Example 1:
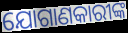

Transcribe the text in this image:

ଯୋଗାଣକାରୀଙ୍କ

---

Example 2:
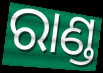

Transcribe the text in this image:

ରାଣ୍ଡ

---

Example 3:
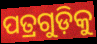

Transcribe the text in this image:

ପତ୍ରଗୁଡ଼ିକୁ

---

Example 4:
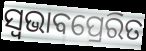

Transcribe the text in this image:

ସ୍ୱଭାବପ୍ରେରିତ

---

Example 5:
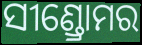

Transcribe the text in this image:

ସୀଣ୍ଡ୍ରୋମର